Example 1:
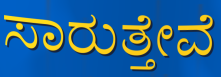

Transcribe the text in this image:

ಸಾರುತ್ತೇವೆ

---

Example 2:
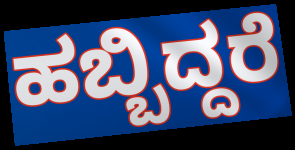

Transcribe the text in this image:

ಹಬ್ಬಿದ್ದರೆ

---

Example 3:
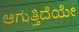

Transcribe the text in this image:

ಆಗುತ್ತಿದೆಯೇ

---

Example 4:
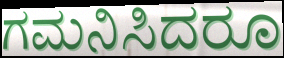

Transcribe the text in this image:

ಗಮನಿಸಿದರೂ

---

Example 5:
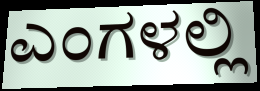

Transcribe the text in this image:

ಎಂಗಳಲ್ಲಿ